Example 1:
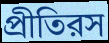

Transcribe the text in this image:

প্রীতিরস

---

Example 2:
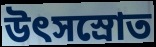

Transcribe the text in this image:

উৎসস্রোত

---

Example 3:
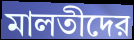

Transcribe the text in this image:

মালতীদের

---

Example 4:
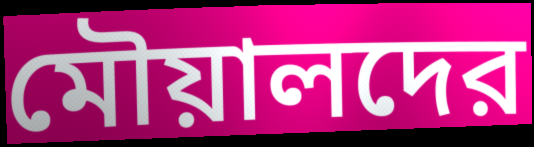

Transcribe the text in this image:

মৌয়ালদের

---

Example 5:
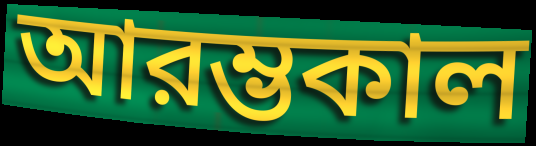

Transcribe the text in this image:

আরম্ভকাল